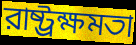
রাষ্ট্রক্ষমতা